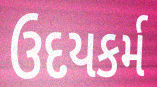
ઉદયકર્મ